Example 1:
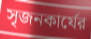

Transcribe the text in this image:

সৃজনকার্যের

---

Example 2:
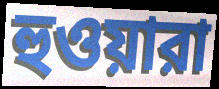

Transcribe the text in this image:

হুওয়ারা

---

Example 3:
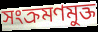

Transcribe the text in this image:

সংক্রমণমুক্ত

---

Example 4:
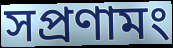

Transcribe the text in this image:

সপ্রণামং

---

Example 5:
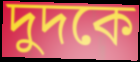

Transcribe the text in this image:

দুদকে